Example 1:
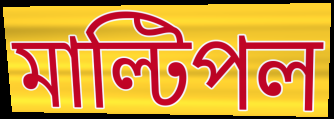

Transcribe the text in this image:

মাল্টিপল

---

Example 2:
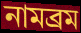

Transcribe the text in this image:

নামব্রম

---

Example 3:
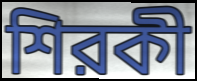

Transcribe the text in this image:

শিরকী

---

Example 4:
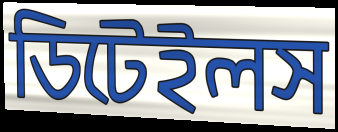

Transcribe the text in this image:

ডিটেইলস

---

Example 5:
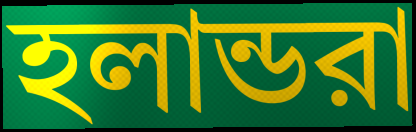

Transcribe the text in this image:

হলান্ডরা